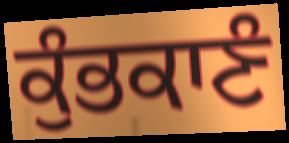
ਕੁੰਭਕਾਣੰ